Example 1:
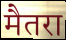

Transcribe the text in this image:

मैतरा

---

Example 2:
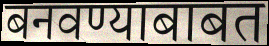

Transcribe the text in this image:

बनवण्याबाबत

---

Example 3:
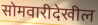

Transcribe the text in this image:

सोमवारीदेखील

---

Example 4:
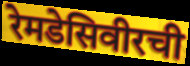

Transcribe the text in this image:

रेमडेसिवीरची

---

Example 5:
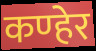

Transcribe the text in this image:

कण्हेर